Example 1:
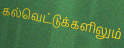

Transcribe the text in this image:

கல்வெட்டுக்களிலும்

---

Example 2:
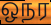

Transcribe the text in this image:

ஒநர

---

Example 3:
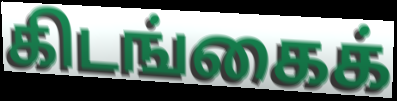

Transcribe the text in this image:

கிடங்கைக்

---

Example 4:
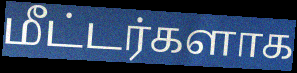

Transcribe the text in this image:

மீட்டர்களாக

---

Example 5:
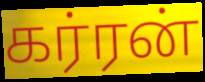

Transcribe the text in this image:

கர்ரன்